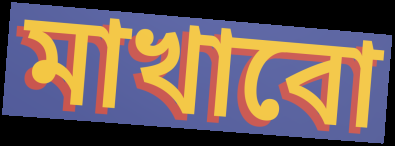
মাখাবো